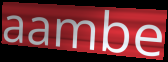
aambe